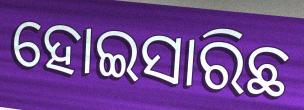
ହୋଇସାରିଛ